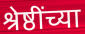
श्रेष्ठींच्या